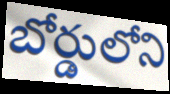
బోర్డులోని